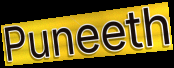
Puneeth